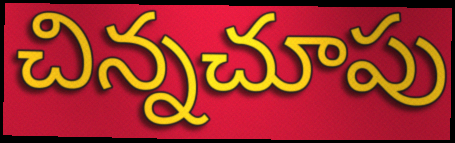
చిన్నచూపు